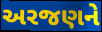
અરજણને